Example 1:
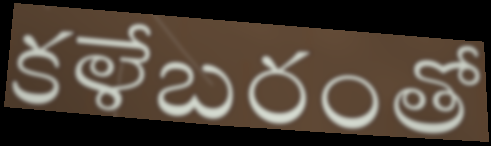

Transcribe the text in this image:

కళేబరంతో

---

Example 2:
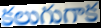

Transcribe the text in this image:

కలుగుగాక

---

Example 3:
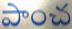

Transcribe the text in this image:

పాంచ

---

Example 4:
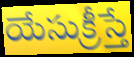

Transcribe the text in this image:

యేసుక్రీస్తే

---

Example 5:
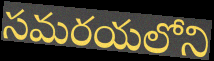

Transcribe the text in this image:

సమరయలోని